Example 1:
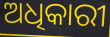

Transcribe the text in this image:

ଅଧିକାରୀ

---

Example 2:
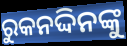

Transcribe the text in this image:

ରୁକନଦ୍ଦିନଙ୍କୁ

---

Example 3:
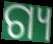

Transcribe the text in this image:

ଗ୍ୟ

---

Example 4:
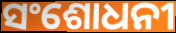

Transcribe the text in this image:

ସଂଶୋଧନୀ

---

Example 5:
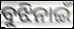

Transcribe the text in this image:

ବୁଝିନାଇଁ